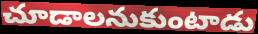
చూడాలనుకుంటాడు